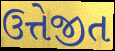
ઉત્તેજીત